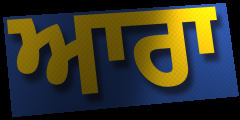
ਆਰਾ